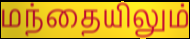
மந்தையிலும்